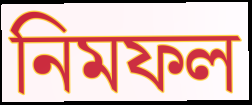
নিমফল